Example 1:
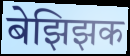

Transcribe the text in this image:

बेझिझक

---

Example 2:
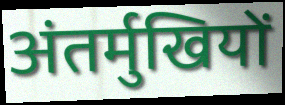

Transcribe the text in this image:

अंतर्मुखियों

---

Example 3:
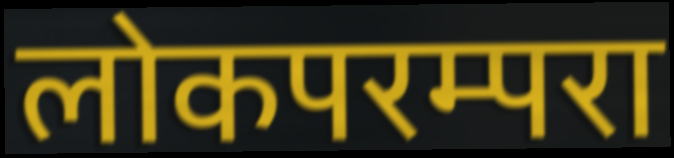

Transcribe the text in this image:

लोकपरम्परा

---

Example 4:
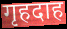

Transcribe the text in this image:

गृहदाह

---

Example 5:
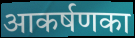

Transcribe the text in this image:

आकर्षणका